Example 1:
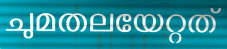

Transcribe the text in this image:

ചുമതലയേറ്റത്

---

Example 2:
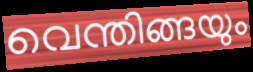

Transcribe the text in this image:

വെന്തിങ്ങയും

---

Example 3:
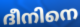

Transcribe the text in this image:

ദീനിനെ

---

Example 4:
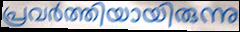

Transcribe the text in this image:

പ്രവർത്തിയായിരുന്നു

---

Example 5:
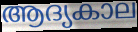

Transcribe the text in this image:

ആദ്യകാല